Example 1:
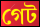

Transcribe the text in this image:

গেট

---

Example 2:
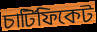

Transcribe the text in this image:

চাৰ্টিফিকেট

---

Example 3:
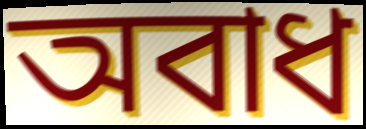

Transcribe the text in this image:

অবাধ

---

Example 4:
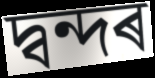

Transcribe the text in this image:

দ্বন্দৰ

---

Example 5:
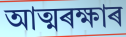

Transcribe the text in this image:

আত্মৰক্ষাৰ